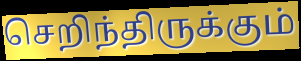
செறிந்திருக்கும்